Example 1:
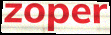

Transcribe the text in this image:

zoper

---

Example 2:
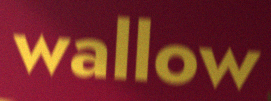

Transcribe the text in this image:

wallow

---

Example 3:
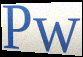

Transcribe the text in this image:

Pw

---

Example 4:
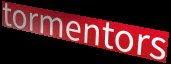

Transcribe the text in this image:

tormentors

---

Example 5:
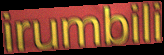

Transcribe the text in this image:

irumbili